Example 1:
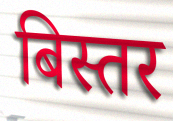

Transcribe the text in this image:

बिस्तर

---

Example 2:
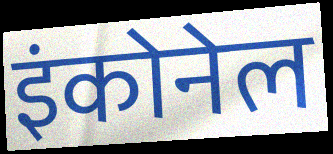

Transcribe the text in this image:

इंकोनेल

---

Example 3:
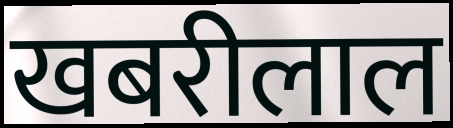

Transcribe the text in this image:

खबरीलाल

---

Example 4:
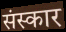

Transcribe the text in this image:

संस्कार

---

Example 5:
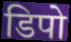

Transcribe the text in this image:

डिपो